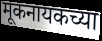
मूकनायकच्या